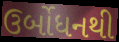
ઉર્બોધનથી